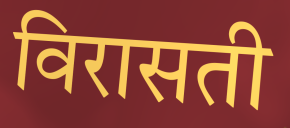
विरासती